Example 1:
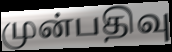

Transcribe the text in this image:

முன்பதிவு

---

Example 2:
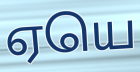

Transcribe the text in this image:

ஏயெ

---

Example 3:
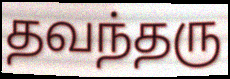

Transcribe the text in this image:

தவந்தரு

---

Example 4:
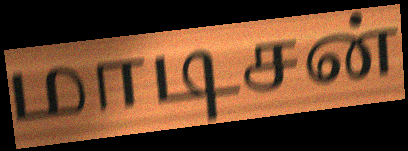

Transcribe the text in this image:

மாடிசன்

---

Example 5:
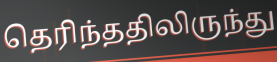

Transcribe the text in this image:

தெரிந்ததிலிருந்து